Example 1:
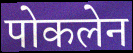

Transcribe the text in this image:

पोकलेन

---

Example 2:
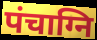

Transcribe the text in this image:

पंचाग्नि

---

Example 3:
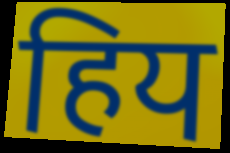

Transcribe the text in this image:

हिय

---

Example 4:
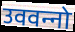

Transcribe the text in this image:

उववन्नो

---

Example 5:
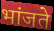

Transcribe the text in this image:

भांजते